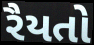
રૈયતો